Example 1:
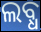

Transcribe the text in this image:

ଲବ୍ଧ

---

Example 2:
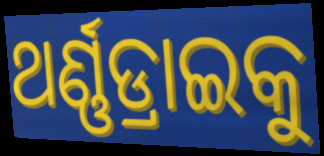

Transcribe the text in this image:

ଥର୍ଣ୍ଣଡ୍ରାଇକୁ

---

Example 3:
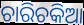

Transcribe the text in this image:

ଚାରିଚକିଆ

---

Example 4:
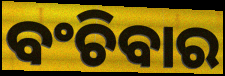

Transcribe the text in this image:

ବଂଚିବାର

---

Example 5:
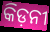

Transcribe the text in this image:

କିଡ଼ନୀ